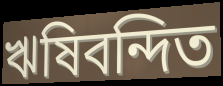
ঋষিবন্দিত